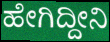
ಹೇಗಿದ್ದೀನಿ